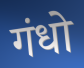
गंधो